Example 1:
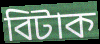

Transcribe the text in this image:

বিটাক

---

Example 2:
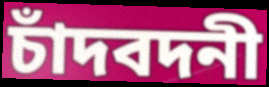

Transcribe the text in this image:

চাঁদবদনী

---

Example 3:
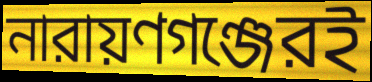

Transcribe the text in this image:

নারায়ণগঞ্জেরই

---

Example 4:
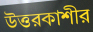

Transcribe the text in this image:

উত্তরকাশীর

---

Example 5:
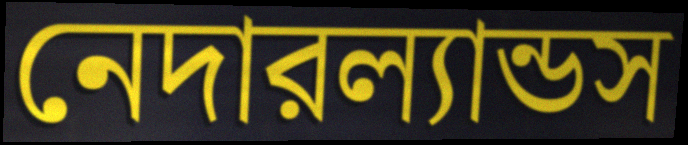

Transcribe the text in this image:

নেদারল্যান্ডস